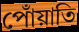
পোঁয়াতি